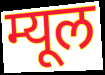
म्यूल